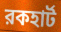
রকহার্ট